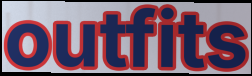
outfits